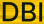
DBI